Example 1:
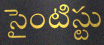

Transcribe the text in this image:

సైంటిస్టు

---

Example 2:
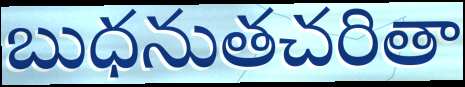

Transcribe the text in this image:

బుధనుతచరితా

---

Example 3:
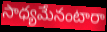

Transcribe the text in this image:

సాధ్యమేనంటారా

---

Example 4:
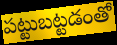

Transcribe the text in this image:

పట్టుబట్టడంతో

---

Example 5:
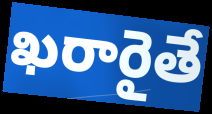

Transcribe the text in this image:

ఖరారైతే